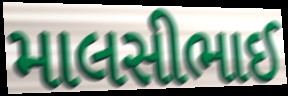
માલસીભાઈ